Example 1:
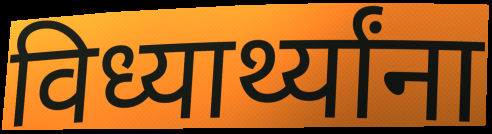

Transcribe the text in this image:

विध्यार्थ्यांना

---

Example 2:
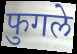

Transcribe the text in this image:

फुगले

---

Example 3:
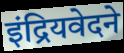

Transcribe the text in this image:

इंद्रियवेदने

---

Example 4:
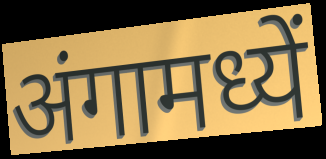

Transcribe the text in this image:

अंगामध्यें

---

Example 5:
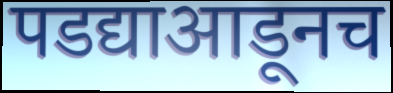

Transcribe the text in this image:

पडद्याआडूनच